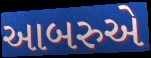
આબરુએ